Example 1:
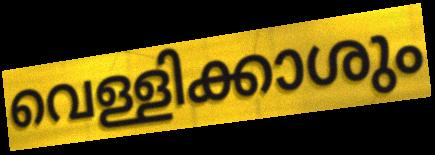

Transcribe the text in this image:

വെള്ളിക്കാശും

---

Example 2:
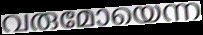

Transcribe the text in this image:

വരുമോയെന്ന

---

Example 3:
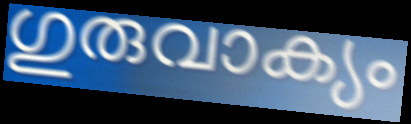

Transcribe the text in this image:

ഗുരുവാക്യം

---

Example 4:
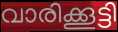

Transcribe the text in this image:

വാരിക്കൂട്ടി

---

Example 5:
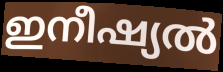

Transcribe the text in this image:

ഇനീഷ്യൽ